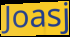
Joasj